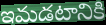
ఇమడటానికి